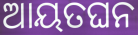
ଆୟତଘନ